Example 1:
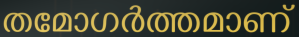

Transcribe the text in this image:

തമോഗർത്തമാണ്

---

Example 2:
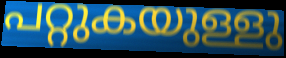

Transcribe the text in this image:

പറ്റുകയുള്ളു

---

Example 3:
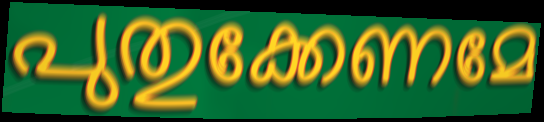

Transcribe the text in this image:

പുതുക്കേണമേ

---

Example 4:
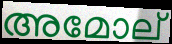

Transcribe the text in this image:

അമോല്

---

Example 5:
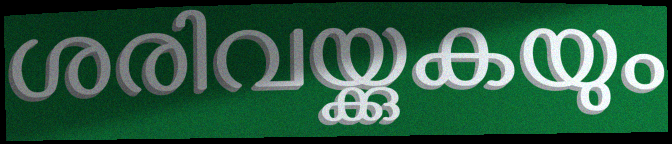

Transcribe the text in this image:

ശരിവയ്ക്കുകയും